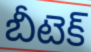
బీటెక్